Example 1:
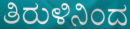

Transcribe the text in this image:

ತಿರುಳಿನಿಂದ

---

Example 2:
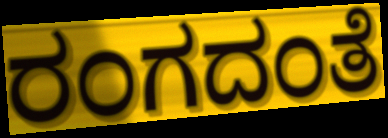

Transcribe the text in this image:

ರಂಗದಂತೆ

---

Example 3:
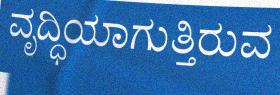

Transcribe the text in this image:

ವೃದ್ಧಿಯಾಗುತ್ತಿರುವ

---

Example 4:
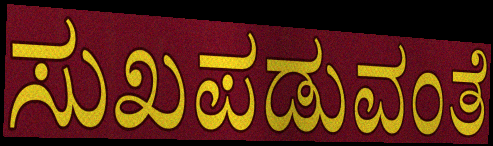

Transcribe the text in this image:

ಸುಖಪಡುವಂತೆ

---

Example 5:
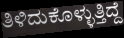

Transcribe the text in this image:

ತಿಳಿದುಕೊಳ್ಳುತ್ತಿದ್ದೆ